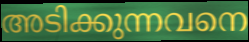
അടിക്കുന്നവനെ